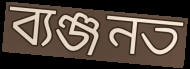
ব্যঞ্জনত